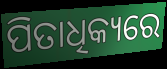
ପିତାଧିକ୍ୟରେ